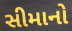
સીમાનો